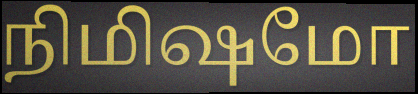
நிமிஷமோ